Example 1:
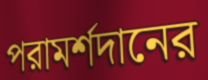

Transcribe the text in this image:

পরামর্শদানের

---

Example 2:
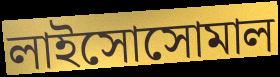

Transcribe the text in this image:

লাইসোসোমাল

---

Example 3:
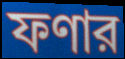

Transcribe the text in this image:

ফণার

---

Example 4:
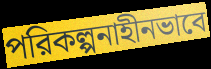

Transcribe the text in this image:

পরিকল্পনাহীনভাবে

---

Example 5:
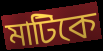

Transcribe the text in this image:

মাটিকে